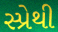
સ્પ્રેથી